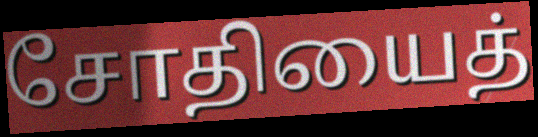
சோதியைத்